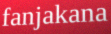
fanjakana